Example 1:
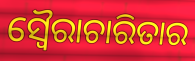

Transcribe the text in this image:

ସ୍ୱୈରାଚାରିତାର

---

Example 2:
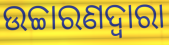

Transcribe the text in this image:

ଉଚ୍ଚାରଣଦ୍ଵାରା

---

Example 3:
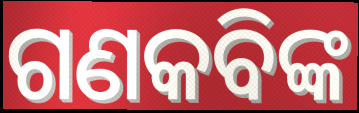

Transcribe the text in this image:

ଗଣକବିଙ୍କ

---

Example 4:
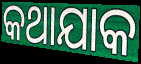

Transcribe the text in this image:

କଥାଯାକ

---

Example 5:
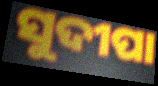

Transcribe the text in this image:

ସୁଦୀପା